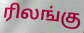
ரிலங்கு